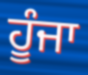
ਹੂੰਜਾ